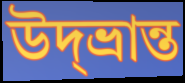
উদ্‌ভ্রান্ত